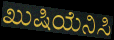
ಖುಷಿಯೆನಿಸಿ